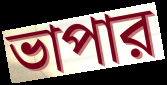
ভাপার